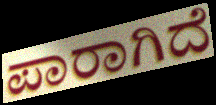
ಪಾರಾಗಿದೆ